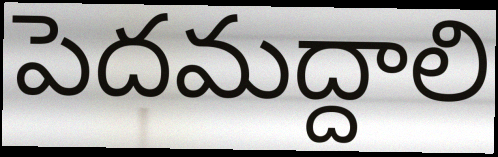
పెదమద్దాలి